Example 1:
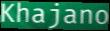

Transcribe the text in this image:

Khajano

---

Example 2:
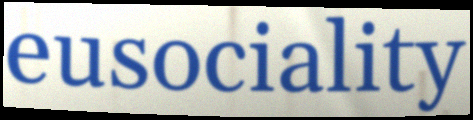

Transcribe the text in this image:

eusociality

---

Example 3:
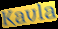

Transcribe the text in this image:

Kaula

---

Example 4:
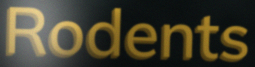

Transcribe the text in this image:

Rodents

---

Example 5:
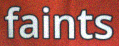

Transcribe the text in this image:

faints